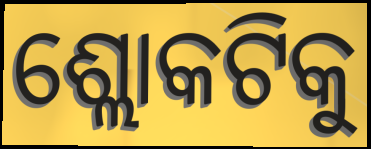
ଶ୍ଲୋକଟିକୁ